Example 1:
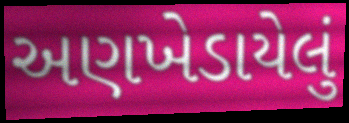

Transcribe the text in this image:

અણખેડાયેલું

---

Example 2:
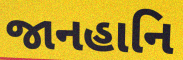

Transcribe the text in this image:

જાનહાનિ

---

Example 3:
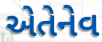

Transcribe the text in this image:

એતેનેવ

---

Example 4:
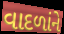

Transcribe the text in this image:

વાદળાંને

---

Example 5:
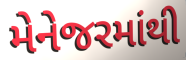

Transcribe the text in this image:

મેનેજરમાંથી